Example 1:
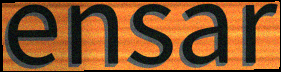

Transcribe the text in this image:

ensar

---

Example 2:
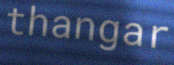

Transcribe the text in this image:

thangar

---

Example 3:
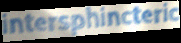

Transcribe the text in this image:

intersphincteric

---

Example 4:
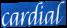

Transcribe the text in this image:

cardial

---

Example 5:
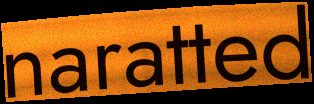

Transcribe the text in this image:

naratted